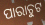
ପାରାଚୁଟ